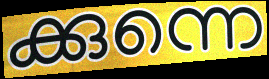
ക്കുന്നെ